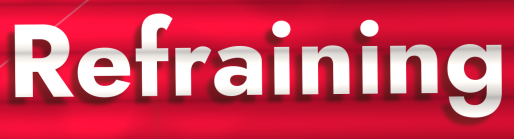
Refraining